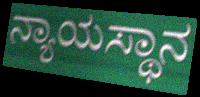
ನ್ಯಾಯಸ್ಥಾನ